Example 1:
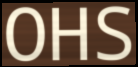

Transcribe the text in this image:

OHS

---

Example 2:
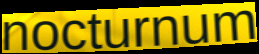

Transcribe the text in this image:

nocturnum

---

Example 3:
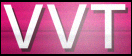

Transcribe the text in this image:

VVT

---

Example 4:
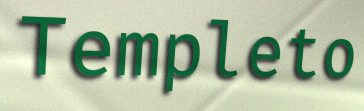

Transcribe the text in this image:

Templeto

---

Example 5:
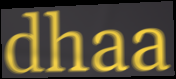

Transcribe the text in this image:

dhaa